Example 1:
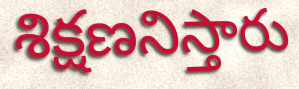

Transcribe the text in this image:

శిక్షణనిస్తారు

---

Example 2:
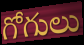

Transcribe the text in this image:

గోగులు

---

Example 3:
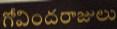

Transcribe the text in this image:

గోవిందరాజులు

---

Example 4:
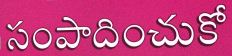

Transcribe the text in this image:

సంపాదించుకో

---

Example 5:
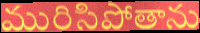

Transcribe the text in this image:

మురిసిపోతాను